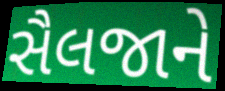
સૈલજાને